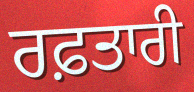
ਰਫ਼ਤਾਰੀ